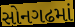
સોનગઢમાં